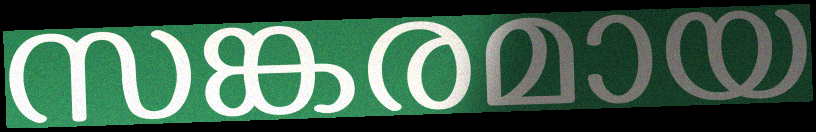
സങ്കരമായ